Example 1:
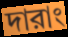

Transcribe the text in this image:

দারাং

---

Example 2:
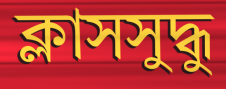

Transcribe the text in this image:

ক্লাসসুদ্ধু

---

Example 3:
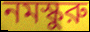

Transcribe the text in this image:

নমস্কুরু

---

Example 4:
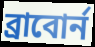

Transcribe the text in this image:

ব্রাবোর্ন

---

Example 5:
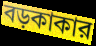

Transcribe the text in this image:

বড়কাকার